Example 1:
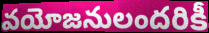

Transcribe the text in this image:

వయోజనులందరికీ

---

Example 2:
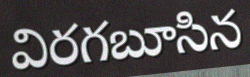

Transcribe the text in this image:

విరగబూసిన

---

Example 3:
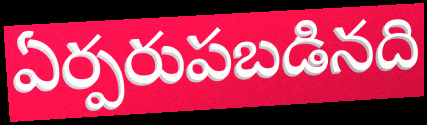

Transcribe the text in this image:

ఏర్పరుపబడినది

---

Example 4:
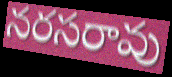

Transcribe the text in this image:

నరసరావు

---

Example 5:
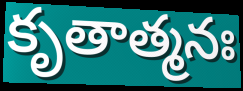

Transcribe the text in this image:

కృతాత్మనః